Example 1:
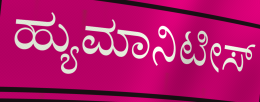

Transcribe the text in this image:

ಹ್ಯುಮಾನಿಟೀಸ್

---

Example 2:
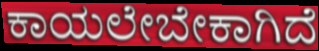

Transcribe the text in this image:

ಕಾಯಲೇಬೇಕಾಗಿದೆ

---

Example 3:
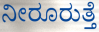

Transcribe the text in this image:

ನೀರೂರುತ್ತೆ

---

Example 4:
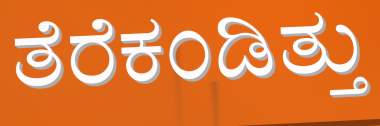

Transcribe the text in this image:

ತೆರೆಕಂಡಿತ್ತು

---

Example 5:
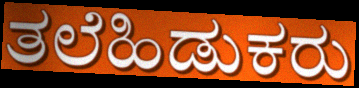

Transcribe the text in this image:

ತಲೆಹಿಡುಕರು